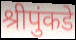
श्रीपुंकडे